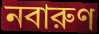
নবারুণ